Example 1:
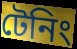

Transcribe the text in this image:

টেনিং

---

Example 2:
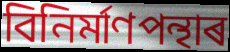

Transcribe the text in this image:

বিনিৰ্মাণপন্থাৰ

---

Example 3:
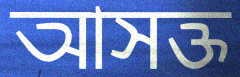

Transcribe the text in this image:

আসক্ত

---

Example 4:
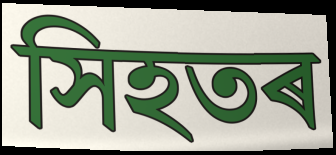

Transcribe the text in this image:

সিহতৰ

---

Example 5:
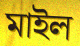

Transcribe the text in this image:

মাইল